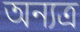
অন্যত্ৰ